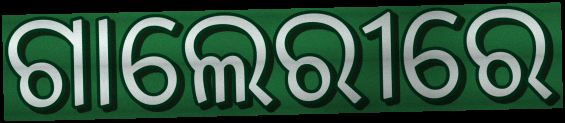
ଗାଲେରୀରେ